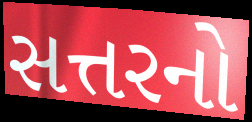
સત્તરનો